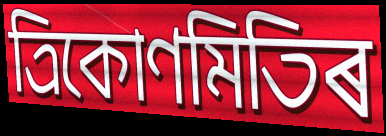
ত্ৰিকোণমিতিৰ